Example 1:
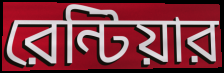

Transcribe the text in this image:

রেন্টিয়ার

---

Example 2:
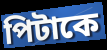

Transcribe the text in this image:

পিটাকে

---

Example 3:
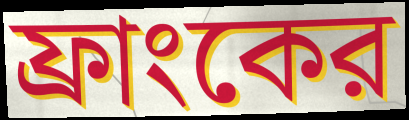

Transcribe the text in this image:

ফ্রাংকের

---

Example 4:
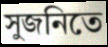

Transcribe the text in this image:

সুজনিতে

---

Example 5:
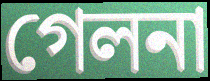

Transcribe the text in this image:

গেলনা